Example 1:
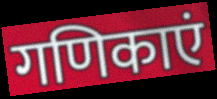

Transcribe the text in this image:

गणिकाएं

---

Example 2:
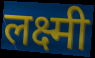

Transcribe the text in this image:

लक्ष्मी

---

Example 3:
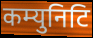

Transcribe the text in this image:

कम्युनिटि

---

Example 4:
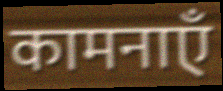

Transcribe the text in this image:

कामनाएँ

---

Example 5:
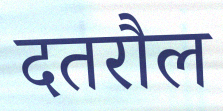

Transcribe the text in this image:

दतरौल